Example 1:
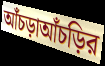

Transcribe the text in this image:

আঁচড়াআঁচড়ির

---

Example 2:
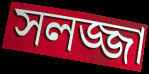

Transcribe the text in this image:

সলজ্জা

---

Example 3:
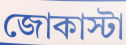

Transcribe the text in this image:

জোকাস্টা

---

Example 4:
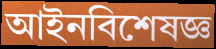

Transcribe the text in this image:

আইনবিশেষজ্ঞ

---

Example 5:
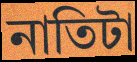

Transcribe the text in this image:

নাতিটা